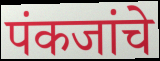
पंकजांचे